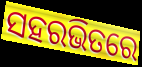
ସହରଭିତରେ